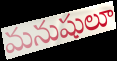
మనుషులూ